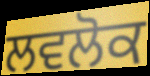
ਲਵਲੋਕ